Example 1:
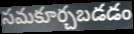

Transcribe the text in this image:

సమకూర్చబడడం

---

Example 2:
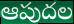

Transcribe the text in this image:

ఆపుదల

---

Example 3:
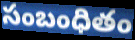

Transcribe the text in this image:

సంబంధితం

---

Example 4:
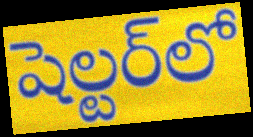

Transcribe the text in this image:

షెల్టర్‌లో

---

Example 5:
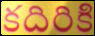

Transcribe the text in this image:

కదిరికి